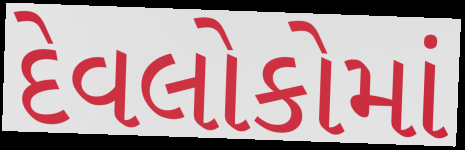
દેવલોકોમાં